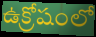
ఉక్రోషంలో